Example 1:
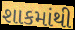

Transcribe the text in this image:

શાકમાંથી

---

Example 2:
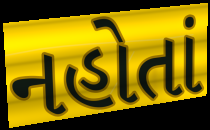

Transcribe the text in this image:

નહોતાં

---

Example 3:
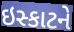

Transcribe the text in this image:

ઇસ્કાટને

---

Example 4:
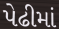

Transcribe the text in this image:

પેઢીમાં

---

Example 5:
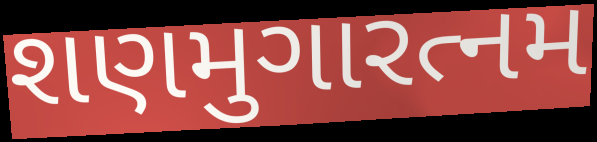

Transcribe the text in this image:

શણમુગારત્નમ